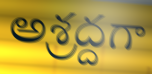
అశ్రద్దగా